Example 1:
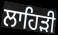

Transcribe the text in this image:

ਲਾਹਿੜੀ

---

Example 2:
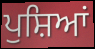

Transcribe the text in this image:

ਪੁਸ਼ਿਆਂ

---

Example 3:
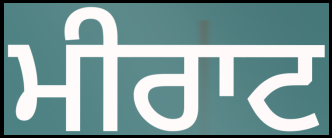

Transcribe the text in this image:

ਮੀਰਾਟ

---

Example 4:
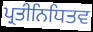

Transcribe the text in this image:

ਪ੍ਰਤੀਨਿਧਿਤਵ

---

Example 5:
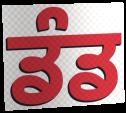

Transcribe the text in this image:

ਡੰਡ